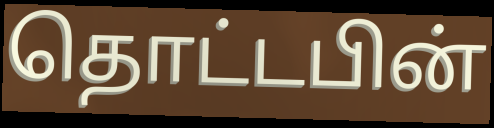
தொட்டபின்